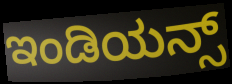
ಇಂಡಿಯನ್ಸ್